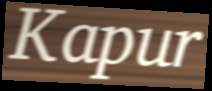
Kapur